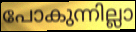
പോകുന്നില്ലാ